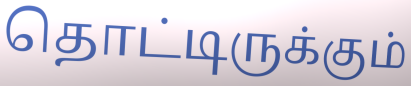
தொட்டிருக்கும்